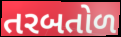
તરબતોળ